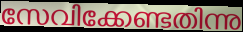
സേവിക്കേണ്ടതിന്നു